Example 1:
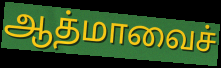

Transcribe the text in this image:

ஆத்மாவைச்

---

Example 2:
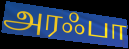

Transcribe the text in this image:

அரஃபா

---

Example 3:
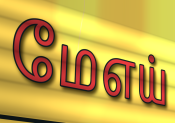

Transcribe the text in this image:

மேஎய்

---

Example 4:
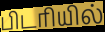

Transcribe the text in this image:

பிடரியில்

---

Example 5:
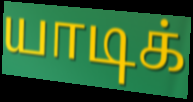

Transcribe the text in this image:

யாடிக்